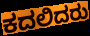
ಕದಲಿದರು